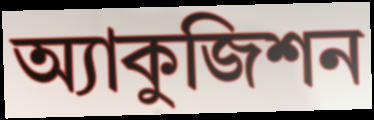
অ্যাকুজিশন